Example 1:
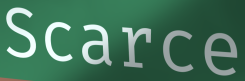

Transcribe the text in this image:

Scarce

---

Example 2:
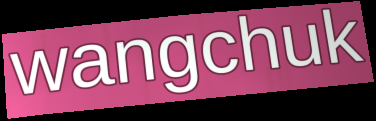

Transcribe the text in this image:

wangchuk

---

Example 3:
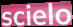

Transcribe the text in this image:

scielo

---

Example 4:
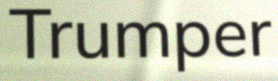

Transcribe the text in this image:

Trumper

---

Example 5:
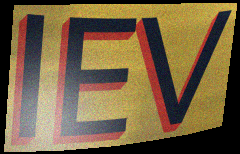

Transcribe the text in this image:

IEV